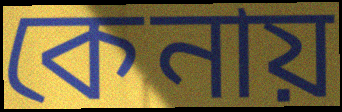
কেনায়